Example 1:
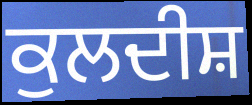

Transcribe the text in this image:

ਕੁਲਦੀਸ਼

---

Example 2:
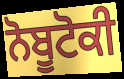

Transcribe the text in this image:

ਨੋਬੂਟੋਕੀ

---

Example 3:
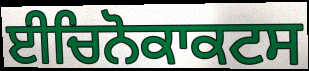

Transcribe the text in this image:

ਈਚਿਨੋਕਾਕਟਸ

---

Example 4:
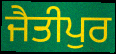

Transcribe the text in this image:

ਜੈਤੀਪੁਰ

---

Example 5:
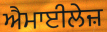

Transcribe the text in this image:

ਐਮਾਈਲੇਜ਼